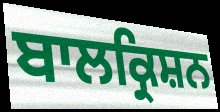
ਬਾਲਕ੍ਰਿਸ਼ਨ